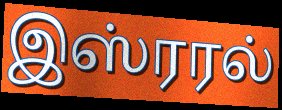
இஸ்ரரல்